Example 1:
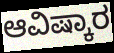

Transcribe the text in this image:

ಆವಿಷ್ಕಾರ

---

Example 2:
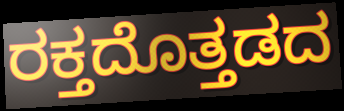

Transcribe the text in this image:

ರಕ್ತದೊತ್ತಡದ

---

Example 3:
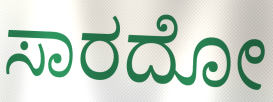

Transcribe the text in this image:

ಸಾರದೋ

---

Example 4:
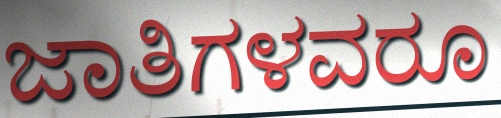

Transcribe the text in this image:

ಜಾತಿಗಳವರೂ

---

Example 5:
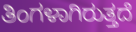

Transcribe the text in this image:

ತಿಂಗಳಾಗಿರುತ್ತದೆ